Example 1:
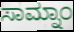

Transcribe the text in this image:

ಸಾಮ್ನಾಂ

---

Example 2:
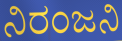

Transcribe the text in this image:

ನಿರಂಜನಿ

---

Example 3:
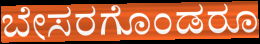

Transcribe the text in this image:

ಬೇಸರಗೊಂಡರೂ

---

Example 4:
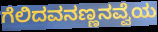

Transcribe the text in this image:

ಗೆಲಿದವನಣ್ಣನವ್ವೆಯ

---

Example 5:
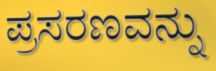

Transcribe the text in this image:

ಪ್ರಸರಣವನ್ನು